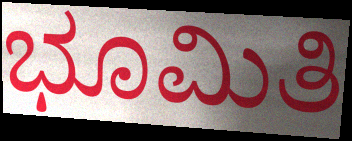
ಭೂಮಿತಿ